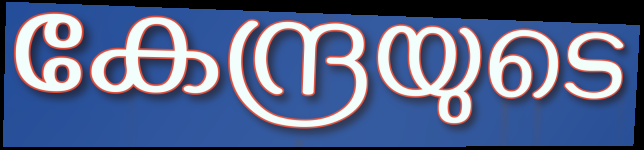
കേന്ദ്രയുടെ